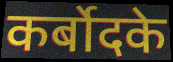
कर्बोदके